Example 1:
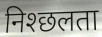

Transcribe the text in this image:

निश्छलता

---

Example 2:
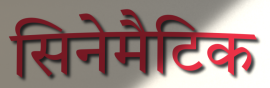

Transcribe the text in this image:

सिनेमैटिक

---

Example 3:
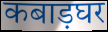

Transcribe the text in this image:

कबाड़घर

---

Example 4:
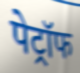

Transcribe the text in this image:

पेट्रॉफ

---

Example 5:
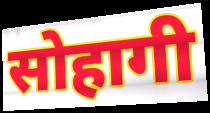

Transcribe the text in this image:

सोहागी